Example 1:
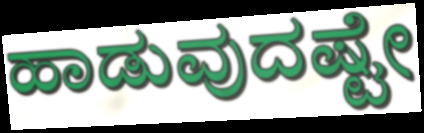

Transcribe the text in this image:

ಹಾಡುವುದಷ್ಟೇ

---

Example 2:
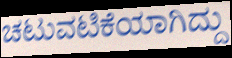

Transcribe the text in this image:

ಚಟುವಟಿಕೆಯಾಗಿದ್ದು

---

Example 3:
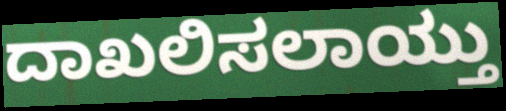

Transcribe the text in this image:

ದಾಖಲಿಸಲಾಯ್ತು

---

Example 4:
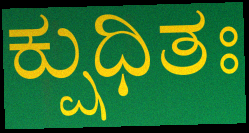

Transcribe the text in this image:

ಕ್ಷುಧಿತಃ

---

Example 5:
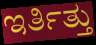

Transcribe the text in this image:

ಇರ್ತಿತ್ತು